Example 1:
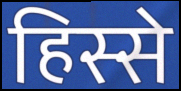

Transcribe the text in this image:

हिस्‍से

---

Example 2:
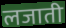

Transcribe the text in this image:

लजाती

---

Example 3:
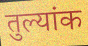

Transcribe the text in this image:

तुल्यांक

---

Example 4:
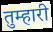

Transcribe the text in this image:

तुम्हारी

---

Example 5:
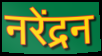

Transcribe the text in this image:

नरेंद्रन